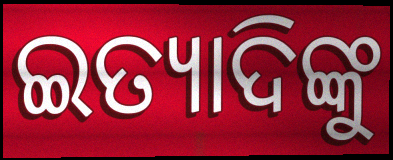
ଇତ୍ଯାଦିଙ୍କୁ